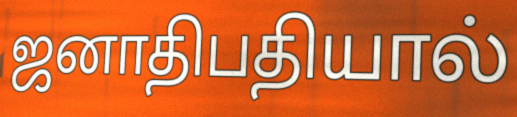
ஜனாதிபதியால்